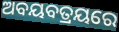
ଅବୟବତ୍ରୟରେ